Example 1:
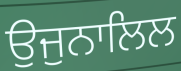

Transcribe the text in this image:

ਉਜੁਨਾਲਿਲ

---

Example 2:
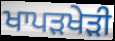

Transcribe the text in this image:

ਖਾਪੜਖੇੜੀ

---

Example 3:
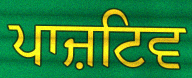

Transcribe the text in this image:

ਪਾਜ਼ਟਿਵ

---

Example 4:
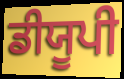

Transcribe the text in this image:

ਡੀਯੂਪੀ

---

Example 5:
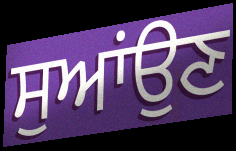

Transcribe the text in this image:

ਸੁਆਂਉਣ